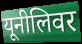
यूनीलिवर